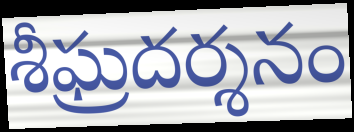
శీఘ్రదర్శనం